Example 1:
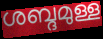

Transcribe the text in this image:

ശബ്ദമുള്ള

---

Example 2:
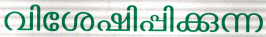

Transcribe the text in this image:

വിശേഷിപ്പിക്കുന്ന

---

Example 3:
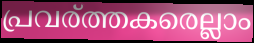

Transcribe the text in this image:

പ്രവര്ത്തകരെല്ലാം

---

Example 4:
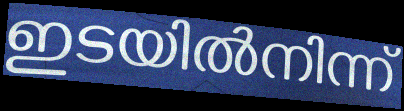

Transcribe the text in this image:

ഇടയിൽനിന്ന്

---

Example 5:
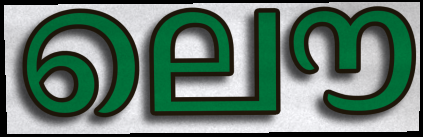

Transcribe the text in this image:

ലൌ